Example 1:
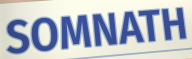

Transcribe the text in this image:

SOMNATH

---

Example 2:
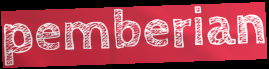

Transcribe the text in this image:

pemberian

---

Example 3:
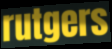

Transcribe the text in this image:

rutgers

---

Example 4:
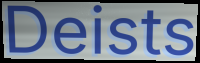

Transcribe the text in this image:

Deists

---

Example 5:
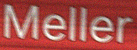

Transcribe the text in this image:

Meller